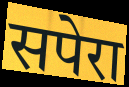
सपेरा